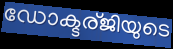
ഡോക്ടര്ജിയുടെ